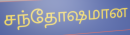
சந்தோஷமான